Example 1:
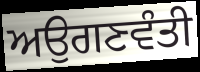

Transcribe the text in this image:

ਅਉਗਣਵੰਤੀ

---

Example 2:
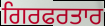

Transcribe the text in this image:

ਗਿਰਫਰਤਾਰ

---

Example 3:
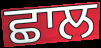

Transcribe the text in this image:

ਛਾਲ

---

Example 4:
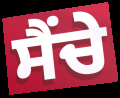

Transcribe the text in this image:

ਸੈਂਚੇ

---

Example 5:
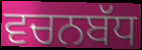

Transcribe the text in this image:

ਵਚਨਬੱਧ